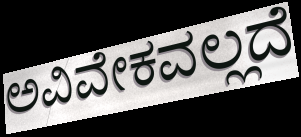
ಅವಿವೇಕವಲ್ಲದೆ